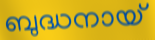
ബുദ്ധനായ്